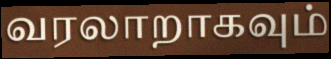
வரலாறாகவும்